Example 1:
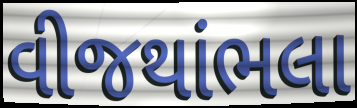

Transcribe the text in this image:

વીજથાંભલા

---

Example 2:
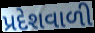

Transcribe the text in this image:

પ્રદેશવાળી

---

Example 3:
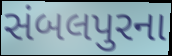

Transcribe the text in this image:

સંબલપુરના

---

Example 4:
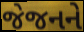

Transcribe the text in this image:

જેજનને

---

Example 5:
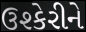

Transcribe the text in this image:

ઉશ્કેરીને